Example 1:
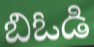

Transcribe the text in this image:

బిఓడి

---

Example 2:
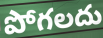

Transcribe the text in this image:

పోగలదు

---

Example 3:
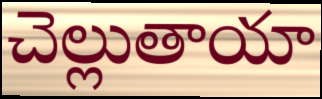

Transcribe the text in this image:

చెల్లుతాయా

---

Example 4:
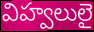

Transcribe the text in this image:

విహ్వలులై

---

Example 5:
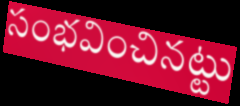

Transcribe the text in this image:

సంభవించినట్టు